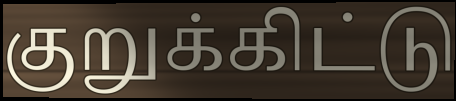
குறுக்கிட்டு